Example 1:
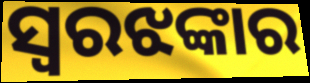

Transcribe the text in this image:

ସ୍ୱରଝଙ୍କାର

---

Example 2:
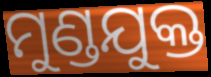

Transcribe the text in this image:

ମୁଣ୍ଡଯୁକ୍ତ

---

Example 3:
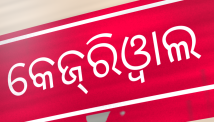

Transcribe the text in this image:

କେଜ୍‌ରିଓ୍ବାଲ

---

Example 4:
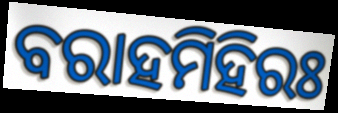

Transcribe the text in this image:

ବରାହମିହିରଃ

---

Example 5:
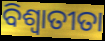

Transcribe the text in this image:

ବିଶ୍ଵାତୀତା